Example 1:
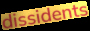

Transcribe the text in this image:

dissidents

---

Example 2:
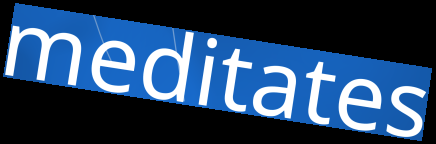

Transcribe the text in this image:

meditates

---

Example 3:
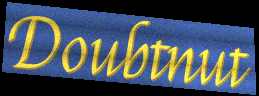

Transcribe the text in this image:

Doubtnut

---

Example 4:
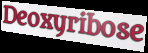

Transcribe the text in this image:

Deoxyribose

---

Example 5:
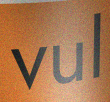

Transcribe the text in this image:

vul